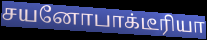
சயனோபாக்டீரியா